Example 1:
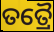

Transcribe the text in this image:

ତତ୍ରୈ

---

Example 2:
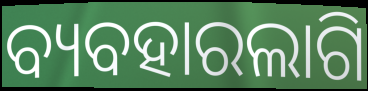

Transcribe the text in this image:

ବ୍ୟବହାରଲାଗି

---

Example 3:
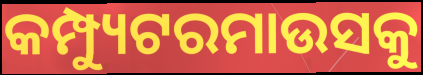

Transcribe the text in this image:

କମ୍ପ୍ୟୁଟରମାଉସକୁ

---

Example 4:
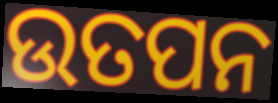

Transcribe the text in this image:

ଉତପନ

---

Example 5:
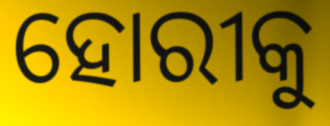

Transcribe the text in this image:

ହୋରୀକୁ